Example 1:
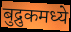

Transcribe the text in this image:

बुद्रुकमध्ये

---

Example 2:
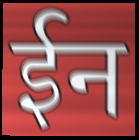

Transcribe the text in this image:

ईन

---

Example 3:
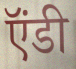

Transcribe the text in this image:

ऍंडी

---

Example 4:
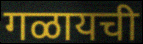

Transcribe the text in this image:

गळायची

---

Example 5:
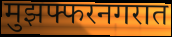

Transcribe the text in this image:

मुझफ्फरनगरात